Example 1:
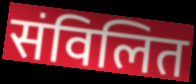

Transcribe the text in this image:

संविलित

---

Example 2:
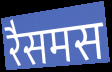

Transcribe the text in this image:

रैसमस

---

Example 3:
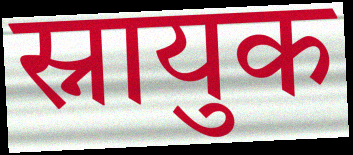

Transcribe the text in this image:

स्नायुक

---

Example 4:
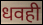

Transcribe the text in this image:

धवही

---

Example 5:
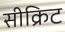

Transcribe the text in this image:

सीक्रिट